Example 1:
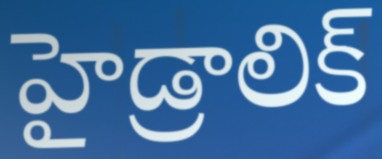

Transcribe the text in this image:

హైడ్రాలిక్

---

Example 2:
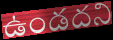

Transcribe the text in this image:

ఉండదని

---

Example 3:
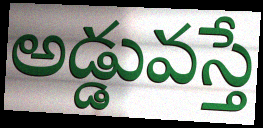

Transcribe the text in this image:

అడ్డువస్తే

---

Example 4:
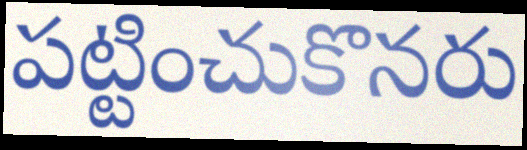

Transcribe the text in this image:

పట్టించుకొనరు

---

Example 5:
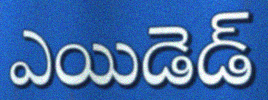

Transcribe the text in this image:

ఎయిడెడ్